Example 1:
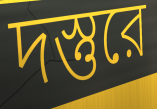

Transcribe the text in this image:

দস্তুরে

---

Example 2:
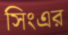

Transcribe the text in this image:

সিংএর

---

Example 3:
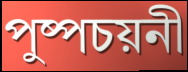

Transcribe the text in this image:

পুষ্পচয়নী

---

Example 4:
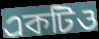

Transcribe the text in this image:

একটিও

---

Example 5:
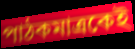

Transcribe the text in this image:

পাঠকমাত্রকেই